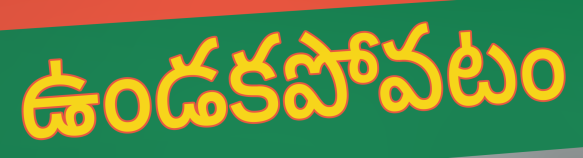
ఉండకపోవటం